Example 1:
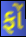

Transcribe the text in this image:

ફોં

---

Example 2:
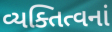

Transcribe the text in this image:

વ્યક્તિત્વનાં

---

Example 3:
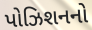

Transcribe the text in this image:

પોઝિશનનો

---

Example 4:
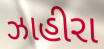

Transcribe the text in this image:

ઝાહીરા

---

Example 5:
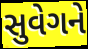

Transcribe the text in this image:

સુવેગને